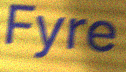
Fyre